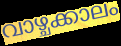
വാഴ്ചക്കാലം